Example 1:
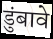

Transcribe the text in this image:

डुंबावे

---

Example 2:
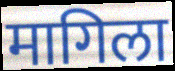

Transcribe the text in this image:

मागिला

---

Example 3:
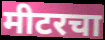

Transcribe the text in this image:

मीटरचा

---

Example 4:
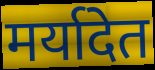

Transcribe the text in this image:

मर्यादेत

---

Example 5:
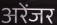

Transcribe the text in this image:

अरेंजर